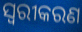
ସ୍ୱରୀକରଣ